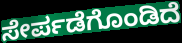
ಸೇರ್ಪಡೆಗೊಂಡಿದೆ